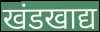
खंडखाद्य